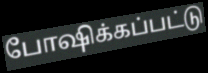
போஷிக்கப்பட்டு